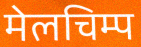
मेलचिम्प